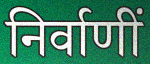
निर्वाणीं